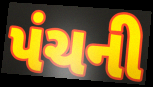
પંચની